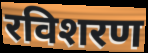
रविशरण